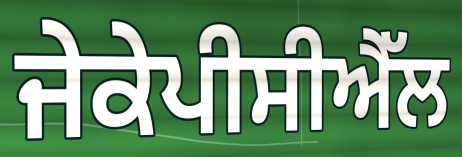
ਜੇਕੇਪੀਸੀਐੱਲ